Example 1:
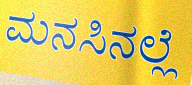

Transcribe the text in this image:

ಮನಸಿನಲ್ಲೆ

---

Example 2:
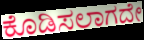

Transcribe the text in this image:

ಕೊಡಿಸಲಾಗದೇ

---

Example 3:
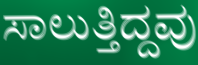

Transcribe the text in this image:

ಸಾಲುತ್ತಿದ್ದವು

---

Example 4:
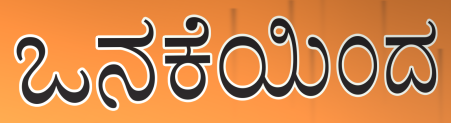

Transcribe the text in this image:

ಒನಕೆಯಿಂದ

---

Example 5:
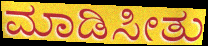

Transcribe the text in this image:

ಮಾಡಿಸೀತು